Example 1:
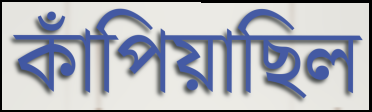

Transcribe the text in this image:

কাঁপিয়াছিল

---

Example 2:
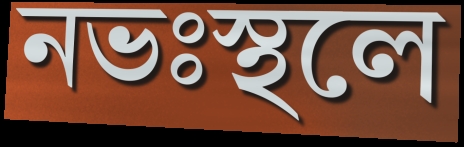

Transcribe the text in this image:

নভঃস্থলে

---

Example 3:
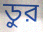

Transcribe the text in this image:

ডুর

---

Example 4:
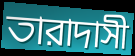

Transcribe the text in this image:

তারাদাসী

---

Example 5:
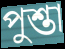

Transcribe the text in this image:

পুশ্তা